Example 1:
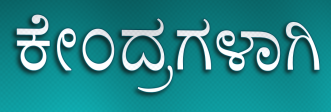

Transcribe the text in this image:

ಕೇಂದ್ರಗಳಾಗಿ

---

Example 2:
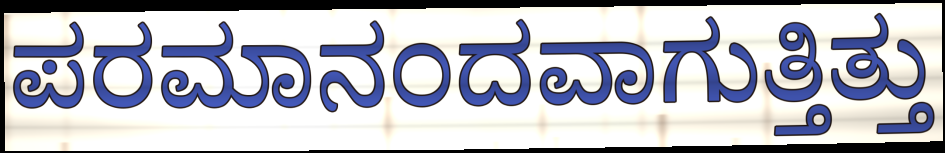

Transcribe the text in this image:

ಪರಮಾನಂದವಾಗುತ್ತಿತ್ತು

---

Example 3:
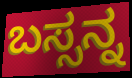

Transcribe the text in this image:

ಬಸ್ಸನ್ನ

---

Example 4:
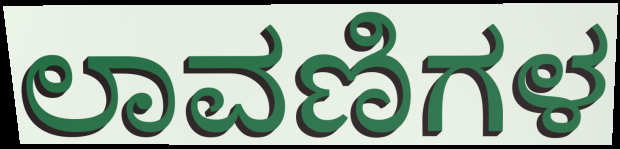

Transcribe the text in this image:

ಲಾವಣಿಗಳ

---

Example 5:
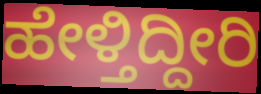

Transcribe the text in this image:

ಹೇಳ್ತಿದ್ದೀರಿ